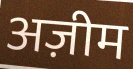
अज़ीम